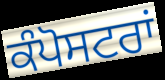
ਕੰਪੋਸਟਰਾਂ